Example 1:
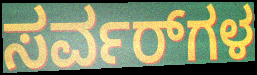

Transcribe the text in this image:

ಸರ್ವರ್‌ಗಳ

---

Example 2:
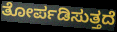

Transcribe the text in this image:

ತೋರ್ಪಡಿಸುತ್ತದೆ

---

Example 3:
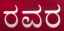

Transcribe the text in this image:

ರವರ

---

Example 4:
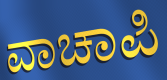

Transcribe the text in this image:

ವಾಚಾಪಿ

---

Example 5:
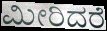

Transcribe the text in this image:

ಮೀರಿದರೆ